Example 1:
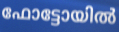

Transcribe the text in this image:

ഫോട്ടോയിൽ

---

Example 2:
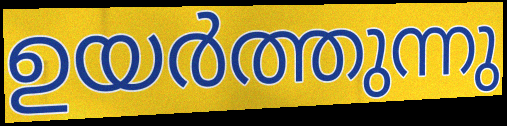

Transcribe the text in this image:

ഉയർത്തുന്നു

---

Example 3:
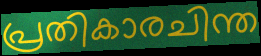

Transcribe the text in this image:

പ്രതികാരചിന്ത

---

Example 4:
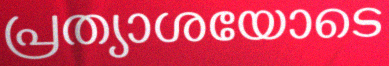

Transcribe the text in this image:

പ്രത്യാശയോടെ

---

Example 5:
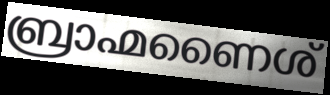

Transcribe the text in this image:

ബ്രാഹ്മണൈശ്